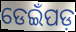
ଡେଇଁପଡ଼